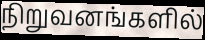
நிறுவனங்களில்